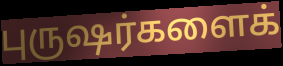
புருஷர்களைக்